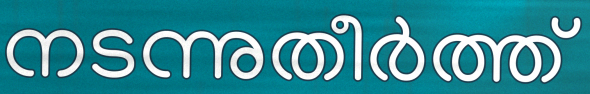
നടന്നുതീർത്ത്